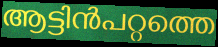
ആട്ടിൻപറ്റത്തെ